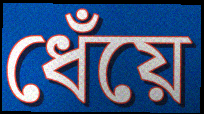
ধেঁয়ে